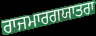
ਰਾਜਮਾਰਗਯਾਤਰਾ